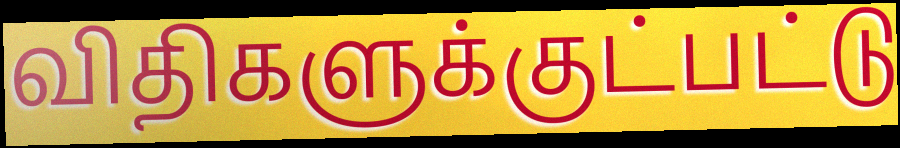
விதிகளுக்குட்பட்டு